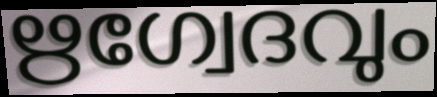
ഋഗ്വേദവും